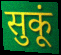
सुकूं